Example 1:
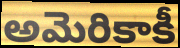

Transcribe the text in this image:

అమెరికాకీ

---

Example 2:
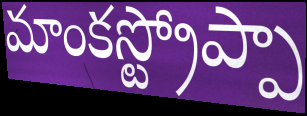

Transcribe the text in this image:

మాంకస్ట్రోప్పా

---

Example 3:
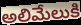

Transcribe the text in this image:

అలిమేలుకి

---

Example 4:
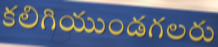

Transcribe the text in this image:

కలిగియుండగలరు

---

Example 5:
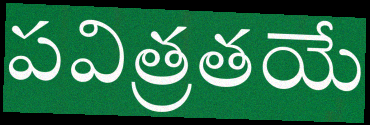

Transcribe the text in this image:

పవిత్రతయే